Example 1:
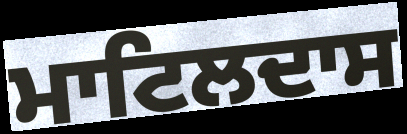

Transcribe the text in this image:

ਮਾਟਿਲਦਾਸ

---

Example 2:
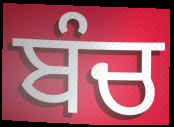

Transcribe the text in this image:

ਬੰਚ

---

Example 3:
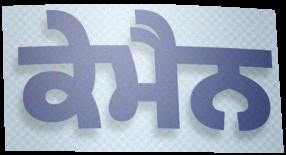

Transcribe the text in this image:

ਕੇਮੈਨ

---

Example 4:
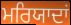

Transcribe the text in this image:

ਮਰਿਯਾਦਾਂ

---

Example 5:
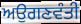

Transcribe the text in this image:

ਅਉਗਣਵੰਤੀ